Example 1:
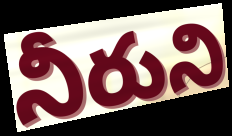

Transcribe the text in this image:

నీరుని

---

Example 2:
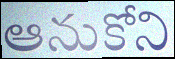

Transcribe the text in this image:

ఆనుకోని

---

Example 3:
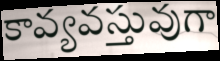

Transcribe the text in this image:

కావ్యవస్తువుగా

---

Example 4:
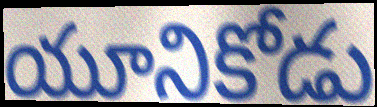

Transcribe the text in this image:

యూనికోడు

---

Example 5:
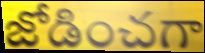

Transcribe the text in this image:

జోడించగా